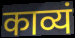
काव्यं